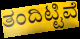
ತಂದಿಟ್ಟಿವೆ